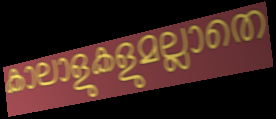
കാലാളുകളുമല്ലാതെ